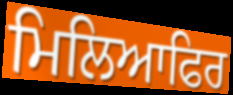
ਮਿਲਿਆਫਿਰ